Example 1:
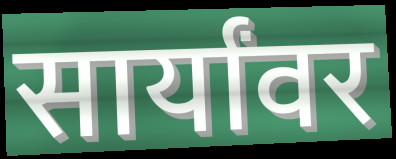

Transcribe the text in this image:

सार्यांवर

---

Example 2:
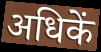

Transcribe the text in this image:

अधिकें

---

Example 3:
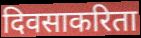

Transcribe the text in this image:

दिवसाकरिता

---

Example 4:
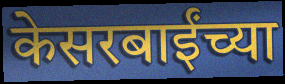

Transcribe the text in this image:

केसरबाईंच्या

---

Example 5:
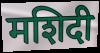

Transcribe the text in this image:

मशिदी